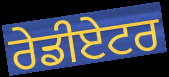
ਰੇਡੀਏਟਰ